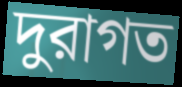
দুরাগত